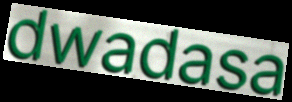
dwadasa